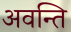
अवन्ति